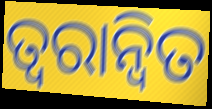
ତ୍ୱରାନ୍ୱିତ